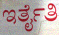
ಇರ್ತೈತಿ